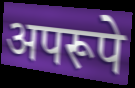
अपरूपे